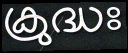
ക്രുദ്ധഃ